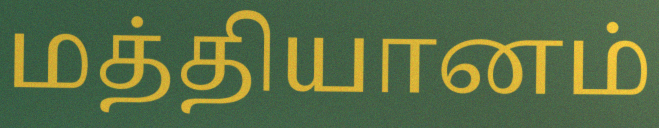
மத்தியானம்